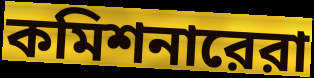
কমিশনারেরা